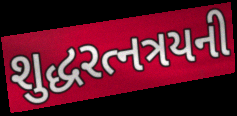
શુદ્ધરત્નત્રયની